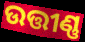
ଉତ୍ତୀଣ୍ଣ